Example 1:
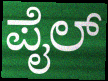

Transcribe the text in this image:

ಪೈಲ್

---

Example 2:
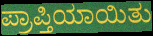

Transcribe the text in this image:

ಪ್ರಾಪ್ತಿಯಾಯಿತು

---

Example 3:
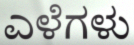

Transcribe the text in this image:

ಎಳೆಗಳು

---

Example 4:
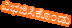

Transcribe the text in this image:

ವಿಭಜಿಸಿಕೊಂಡು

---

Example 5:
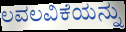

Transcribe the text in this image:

ಲವಲವಿಕೆಯನ್ನು